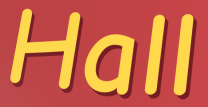
Hall